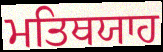
ਮਤਿਥਯਾਹ